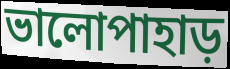
ভালোপাহাড়